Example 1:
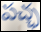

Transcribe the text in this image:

పచ్ఛ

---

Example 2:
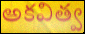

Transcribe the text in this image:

అకవిత్వ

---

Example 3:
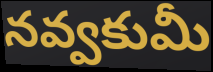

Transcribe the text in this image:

నవ్వకుమీ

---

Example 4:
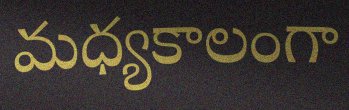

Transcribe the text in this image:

మధ్యకాలంగా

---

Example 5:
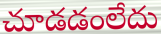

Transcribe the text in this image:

చూడడంలేదు